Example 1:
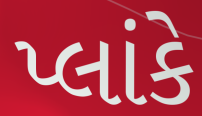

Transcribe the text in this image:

પ્લાંકે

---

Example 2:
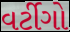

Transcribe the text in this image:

વર્ટીગો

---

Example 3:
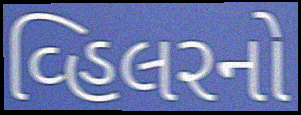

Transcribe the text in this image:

વ્હિલરનો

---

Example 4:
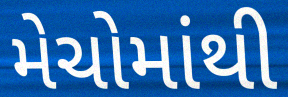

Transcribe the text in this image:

મેચોમાંથી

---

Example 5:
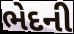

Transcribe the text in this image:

ભેદની